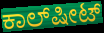
ಕಾಲ್‌ಷೀಟ್